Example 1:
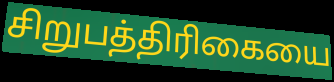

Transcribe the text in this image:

சிறுபத்திரிகையை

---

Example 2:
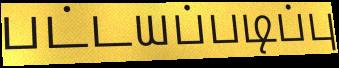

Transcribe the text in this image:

பட்டயப்படிப்பு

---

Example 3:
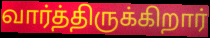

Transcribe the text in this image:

வார்த்திருக்கிறார்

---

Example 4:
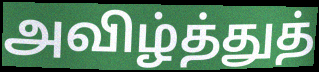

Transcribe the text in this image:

அவிழ்த்துத்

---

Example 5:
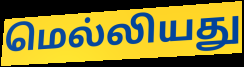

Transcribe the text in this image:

மெல்லியது